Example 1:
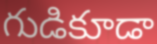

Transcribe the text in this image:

గుడికూడా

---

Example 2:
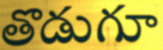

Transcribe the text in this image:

తొడుగూ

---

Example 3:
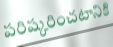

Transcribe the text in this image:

పరిష్కరించటానికి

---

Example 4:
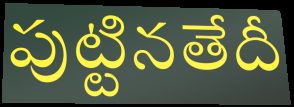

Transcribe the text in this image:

పుట్టినతేదీ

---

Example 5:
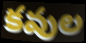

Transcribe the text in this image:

కవుల